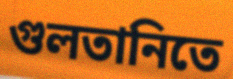
গুলতানিতে